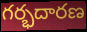
గర్భదారణ